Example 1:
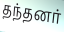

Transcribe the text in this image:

தந்தனர்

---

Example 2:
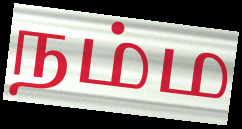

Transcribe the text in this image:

நம்ம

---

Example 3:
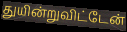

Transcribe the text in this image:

துயின்றுவிட்டேன்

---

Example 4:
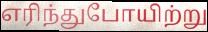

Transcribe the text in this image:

எரிந்துபோயிற்று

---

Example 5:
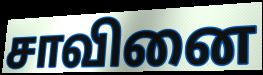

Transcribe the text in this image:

சாவினை